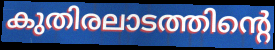
കുതിരലാടത്തിന്റെ